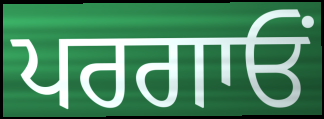
ਪਰਗਾਓਂ